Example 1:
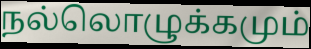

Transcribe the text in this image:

நல்லொழுக்கமும்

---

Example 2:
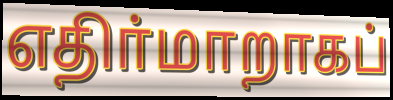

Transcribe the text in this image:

எதிர்மாறாகப்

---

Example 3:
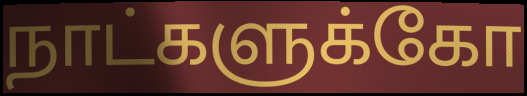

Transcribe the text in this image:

நாட்களுக்கோ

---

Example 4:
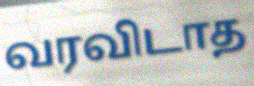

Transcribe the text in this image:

வரவிடாத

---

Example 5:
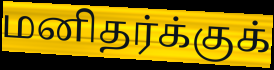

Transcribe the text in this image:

மனிதர்க்குக்